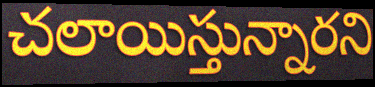
చలాయిస్తున్నారని